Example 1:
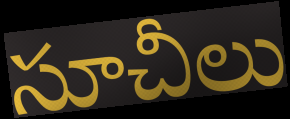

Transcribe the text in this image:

సూచీలు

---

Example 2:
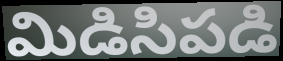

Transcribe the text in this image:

మిడిసిపడి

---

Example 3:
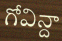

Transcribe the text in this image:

గోవిన్దా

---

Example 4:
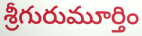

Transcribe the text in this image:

శ్రీగురుమూర్తిం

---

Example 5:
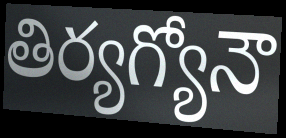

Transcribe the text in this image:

తిర్యగ్యోనౌ